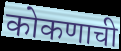
कोकणाची